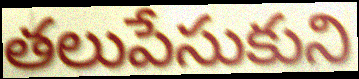
తలుపేసుకుని